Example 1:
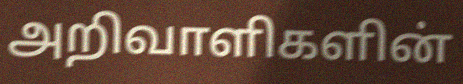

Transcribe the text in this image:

அறிவாளிகளின்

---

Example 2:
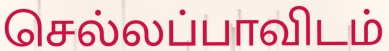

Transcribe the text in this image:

செல்லப்பாவிடம்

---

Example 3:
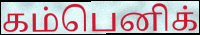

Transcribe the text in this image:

கம்பெனிக்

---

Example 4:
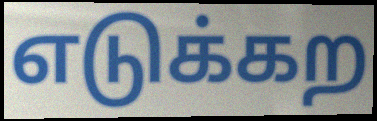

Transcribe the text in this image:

எடுக்கற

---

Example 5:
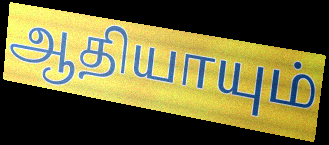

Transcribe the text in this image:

ஆதியாயும்